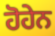
ਹੋਹੇਨ